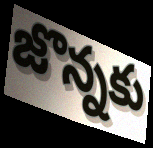
జొన్నకు